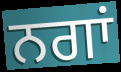
ਨਗਾਂ